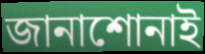
জানাশোনাই